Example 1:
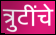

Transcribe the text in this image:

त्रुटींचे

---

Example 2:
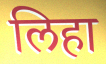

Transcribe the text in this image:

लिहा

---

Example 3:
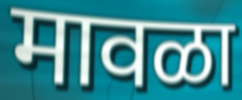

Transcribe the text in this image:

मावळा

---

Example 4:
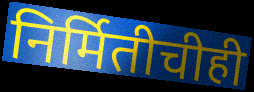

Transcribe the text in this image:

निर्मितीचीही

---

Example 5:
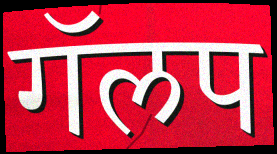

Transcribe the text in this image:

गॅलप